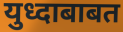
युध्दाबाबत